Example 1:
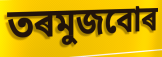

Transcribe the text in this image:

তৰমুজবোৰ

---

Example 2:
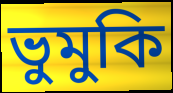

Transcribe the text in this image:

ভুমুকি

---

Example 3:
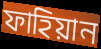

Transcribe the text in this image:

ফাহিয়ান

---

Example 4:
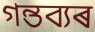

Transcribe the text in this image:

গন্তব্যৰ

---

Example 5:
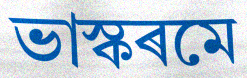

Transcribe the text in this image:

ভাস্কৰমে